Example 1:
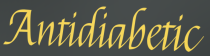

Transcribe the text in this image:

Antidiabetic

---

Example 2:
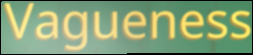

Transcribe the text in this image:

Vagueness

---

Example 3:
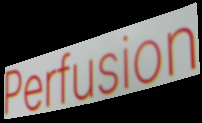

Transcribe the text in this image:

Perfusion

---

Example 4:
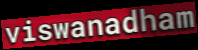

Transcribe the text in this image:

viswanadham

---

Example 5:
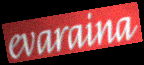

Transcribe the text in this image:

evaraina